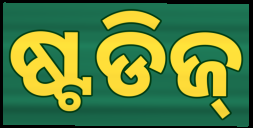
ଷ୍ଟଡିଜ୍